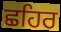
ਛਹਿਰ